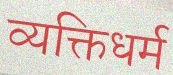
व्यक्तिधर्म